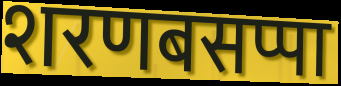
शरणबसप्पा